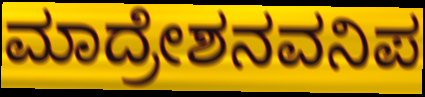
ಮಾದ್ರೇಶನವನಿಪ